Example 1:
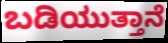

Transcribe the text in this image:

ಬಡಿಯುತ್ತಾನೆ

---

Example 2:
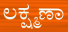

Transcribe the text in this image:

ಲಕ್ಷ್ಮಣಾ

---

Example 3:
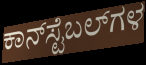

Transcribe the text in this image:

ಕಾನ್‌ಸ್ಟೆಬಲ್‌ಗಳ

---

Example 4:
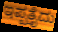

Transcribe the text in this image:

ಇಪ್ಪತ್ತೈದು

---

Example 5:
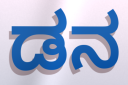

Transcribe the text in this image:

ಡನ